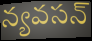
న్యవసన్